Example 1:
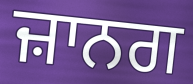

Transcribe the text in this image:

ਜ਼ਾਨਗ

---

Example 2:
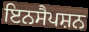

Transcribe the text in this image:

ਇਨਸੈਪਸ਼ਨ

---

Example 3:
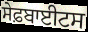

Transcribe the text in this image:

ਸੇਫ਼ਬਾਈਟਸ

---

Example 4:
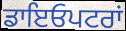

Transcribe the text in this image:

ਡਾਇਓਪਟਰਾਂ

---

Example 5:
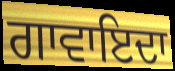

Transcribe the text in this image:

ਗਾਵਾਇਦਾ